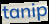
tanip